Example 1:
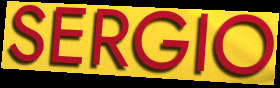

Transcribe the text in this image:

SERGIO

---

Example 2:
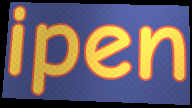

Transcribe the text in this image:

ipen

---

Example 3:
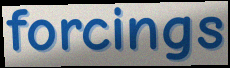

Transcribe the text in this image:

forcings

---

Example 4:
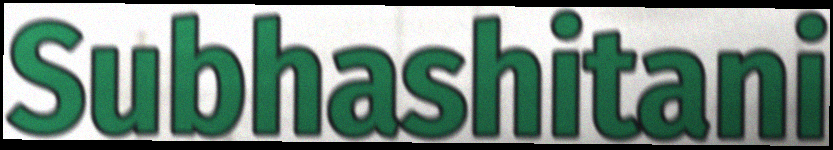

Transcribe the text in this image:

Subhashitani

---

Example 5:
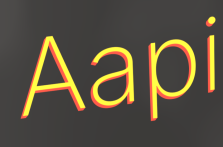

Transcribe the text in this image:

Aapi